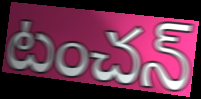
టంచన్